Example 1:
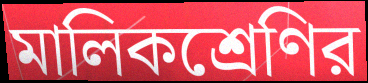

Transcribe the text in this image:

মালিকশ্রেণির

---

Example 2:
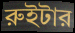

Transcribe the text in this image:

রুইটার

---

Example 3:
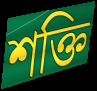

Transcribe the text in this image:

শক্তি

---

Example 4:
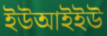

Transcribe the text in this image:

ইউআইইউ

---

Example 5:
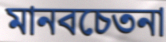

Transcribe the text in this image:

মানবচেতনা